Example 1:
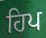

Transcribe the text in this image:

ਹਿਪ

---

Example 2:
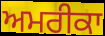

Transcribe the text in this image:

ਅਮਰੀਕਾ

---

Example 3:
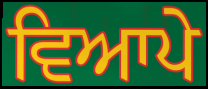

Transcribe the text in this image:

ਵਿਆਪੇ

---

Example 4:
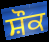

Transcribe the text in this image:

ਸ਼ੌਕ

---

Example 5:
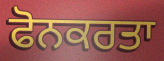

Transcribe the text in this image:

ਫੋਨਕਰਤਾ